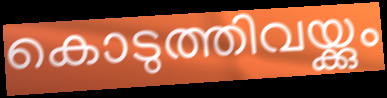
കൊടുത്തിവയ്ക്കും